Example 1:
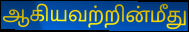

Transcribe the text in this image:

ஆகியவற்றின்மீது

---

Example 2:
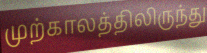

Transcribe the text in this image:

முற்காலத்திலிருந்து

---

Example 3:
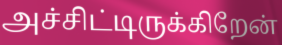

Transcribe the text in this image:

அச்சிட்டிருக்கிறேன்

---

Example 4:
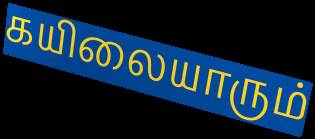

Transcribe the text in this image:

கயிலையாரும்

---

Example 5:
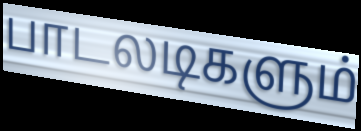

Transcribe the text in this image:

பாடலடிகளும்